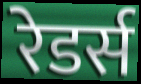
रेडर्स